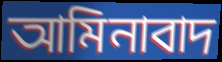
আমিনাবাদ